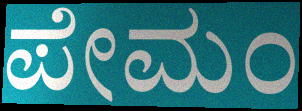
ಪೇಮಂ